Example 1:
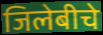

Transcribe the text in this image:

जिलेबीचे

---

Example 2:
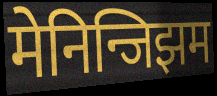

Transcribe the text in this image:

मेनिन्जिझम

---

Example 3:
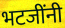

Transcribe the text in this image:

भटजींनी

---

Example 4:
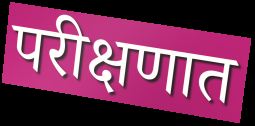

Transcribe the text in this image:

परीक्षणात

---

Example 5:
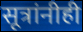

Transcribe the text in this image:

सूत्रांनीही